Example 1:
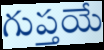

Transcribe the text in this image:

గుప్తయే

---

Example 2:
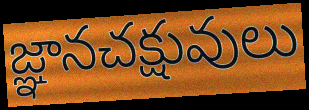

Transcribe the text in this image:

జ్ఞానచక్షువులు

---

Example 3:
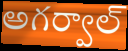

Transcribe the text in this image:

అగర్వాల్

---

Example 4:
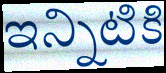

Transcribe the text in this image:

ఇన్నిటికి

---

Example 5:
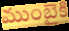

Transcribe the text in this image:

ముంబైకి